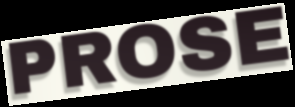
PROSE